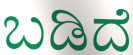
ಬಡಿದೆ